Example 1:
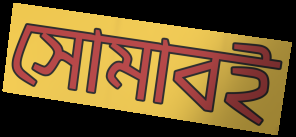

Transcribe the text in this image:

সোমাবই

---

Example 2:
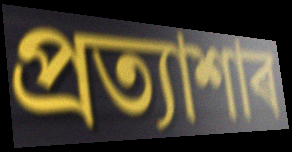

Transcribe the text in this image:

প্ৰত্যাশাৰ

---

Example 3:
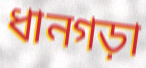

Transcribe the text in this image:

ধানগড়া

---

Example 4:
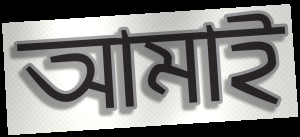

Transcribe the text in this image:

আমাই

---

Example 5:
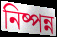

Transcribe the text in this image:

নিষ্পন্ন